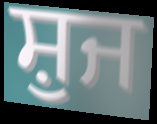
ਸ਼ੁਜ